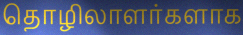
தொழிலாளர்களாக